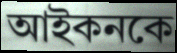
আইকনকে